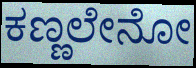
ಕಣ್ಣಲೇನೋ